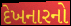
દેખનારનો